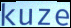
kuze